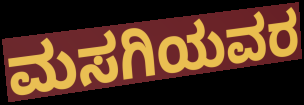
ಮಸಗಿಯವರ